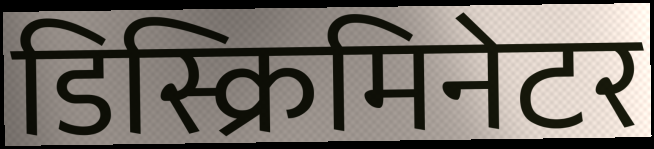
डिस्क्रिमिनेटर